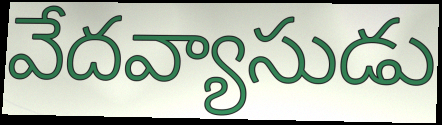
వేదవ్యాసుడు